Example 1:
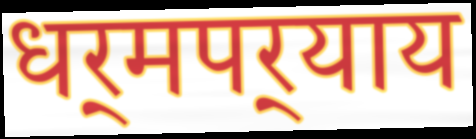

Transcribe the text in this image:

धर्मपर्याय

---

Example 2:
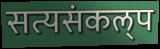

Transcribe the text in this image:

सत्यसंकल्प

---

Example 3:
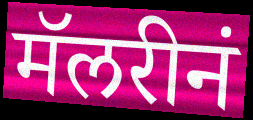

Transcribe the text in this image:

मॅलरीनं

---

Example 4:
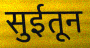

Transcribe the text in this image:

सुईतून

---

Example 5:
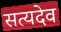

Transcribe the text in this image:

सत्यदेव